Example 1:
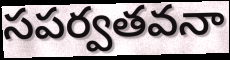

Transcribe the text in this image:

సపర్వతవనా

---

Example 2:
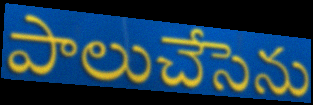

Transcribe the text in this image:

పాలుచేసెను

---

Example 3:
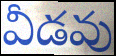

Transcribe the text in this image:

వీడవు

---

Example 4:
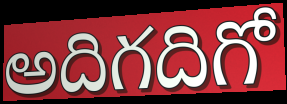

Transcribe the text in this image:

అదిగదిగో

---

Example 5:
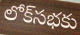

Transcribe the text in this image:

లోక్‌సభకు